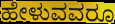
ಹೇಳುವವರೂ